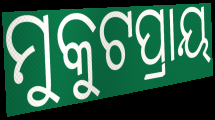
ମୁକୁଟପ୍ରାୟ